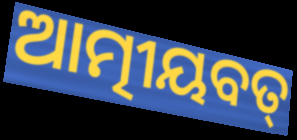
ଆତ୍ମୀୟବତ୍